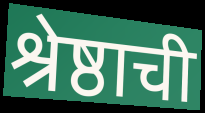
श्रेष्ठाची